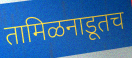
तामिळनाडूतच